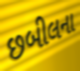
છબીલના